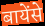
बायेंसे